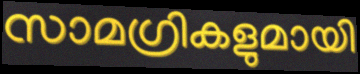
സാമഗ്രികളുമായി